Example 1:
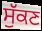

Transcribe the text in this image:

ਸੁੱਕਣ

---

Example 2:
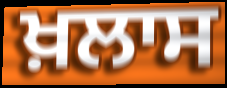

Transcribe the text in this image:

ਖ਼ਲਾਸ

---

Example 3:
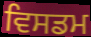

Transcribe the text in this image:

ਵਿਸਡਮ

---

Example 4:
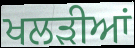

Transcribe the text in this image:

ਖਲੜੀਆਂ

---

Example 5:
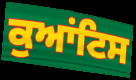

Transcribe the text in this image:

ਕੁਆਂਟਿਸ